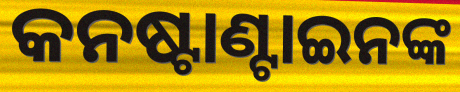
କନଷ୍ଟାଣ୍ଟାଇନଙ୍କ